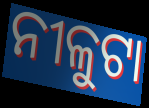
ନୀଳୁଟା